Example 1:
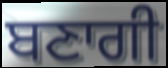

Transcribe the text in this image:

ਬਣਾਗੀ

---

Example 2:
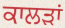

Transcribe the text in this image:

ਕਾਲੜਾਂ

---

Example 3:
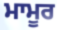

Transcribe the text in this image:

ਮਾਮੂਰ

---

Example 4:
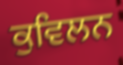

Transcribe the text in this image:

ਕੁਵਿਲਨ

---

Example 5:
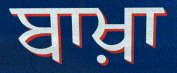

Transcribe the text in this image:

ਬਾਖ਼ਾ